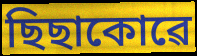
ছিছাকোৱে